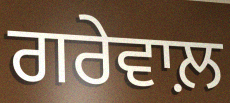
ਗਰੇਵਾਲ਼